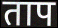
ताप